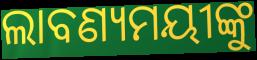
ଲାବଣ୍ୟମୟୀଙ୍କୁ